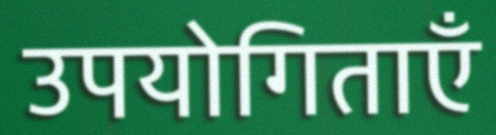
उपयोगिताएँ